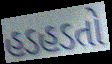
હડહડતો